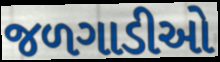
જળગાડીઓ